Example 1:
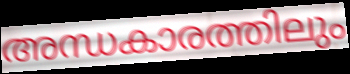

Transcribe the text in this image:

അന്ധകാരത്തിലും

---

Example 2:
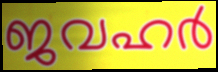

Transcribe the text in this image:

ജവഹർ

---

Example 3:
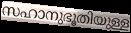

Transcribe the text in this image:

സഹാനുഭൂതിയുള്ള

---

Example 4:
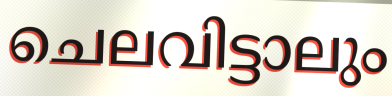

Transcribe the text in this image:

ചെലവിട്ടാലും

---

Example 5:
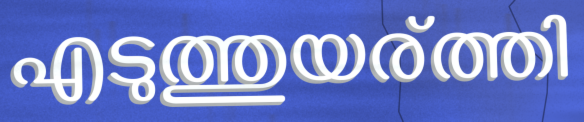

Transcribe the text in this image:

എടുത്തുയര്ത്തി